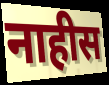
नाहीस